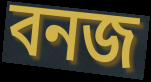
বনজ